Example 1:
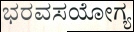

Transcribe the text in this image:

ಭರವಸಯೋಗ್ಯ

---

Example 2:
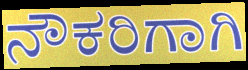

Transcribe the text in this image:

ನೌಕರಿಗಾಗಿ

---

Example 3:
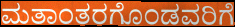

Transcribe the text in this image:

ಮತಾಂತರಗೊಂಡವರಿಗೆ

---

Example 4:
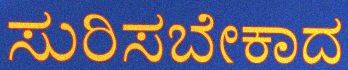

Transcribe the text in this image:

ಸುರಿಸಬೇಕಾದ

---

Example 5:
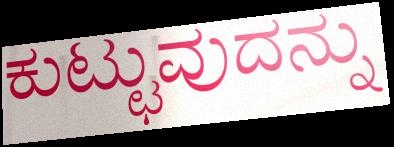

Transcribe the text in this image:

ಕುಟ್ಟುವುದನ್ನು